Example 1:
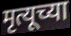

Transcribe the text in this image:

मृत्यूच्या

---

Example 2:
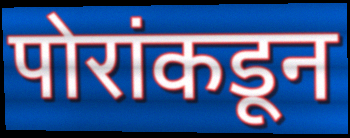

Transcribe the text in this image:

पोरांकडून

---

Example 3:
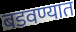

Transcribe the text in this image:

बडवण्यात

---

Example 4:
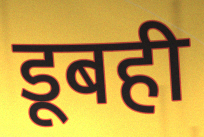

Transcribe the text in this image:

डूबही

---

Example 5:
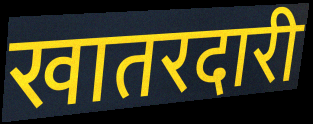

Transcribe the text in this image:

खातरदारी